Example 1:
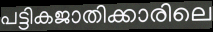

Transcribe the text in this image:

പട്ടികജാതിക്കാരിലെ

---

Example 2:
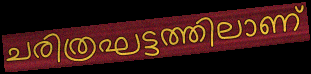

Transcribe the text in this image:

ചരിത്രഘട്ടത്തിലാണ്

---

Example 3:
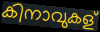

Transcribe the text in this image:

കിനാവുകള്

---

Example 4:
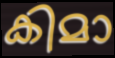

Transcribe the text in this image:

കിമാ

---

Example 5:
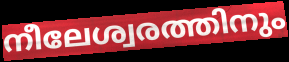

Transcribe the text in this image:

നീലേശ്വരത്തിനും